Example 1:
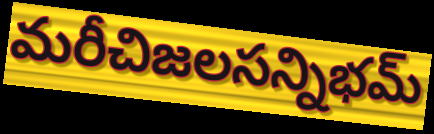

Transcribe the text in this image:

మరీచిజలసన్నిభమ్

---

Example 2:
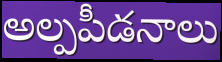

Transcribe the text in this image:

అల్పపీడనాలు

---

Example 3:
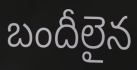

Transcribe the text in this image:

బందీలైన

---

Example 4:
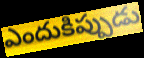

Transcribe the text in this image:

ఎందుకిప్పుడు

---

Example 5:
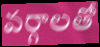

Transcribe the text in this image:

వర్గాలతో